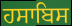
ਹਸਾਬਿਸ